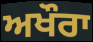
ਅਖੌਰਾ